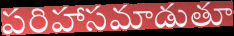
పరిహాసమాడుతూ